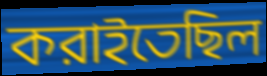
করাইতেছিল